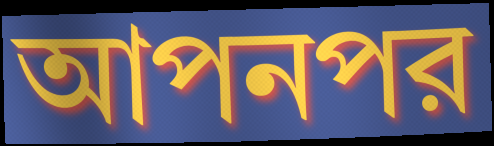
আপনপর